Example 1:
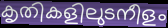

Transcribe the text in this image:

കൃതികളിലുടനീളം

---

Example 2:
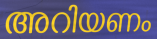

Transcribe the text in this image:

അറിയണം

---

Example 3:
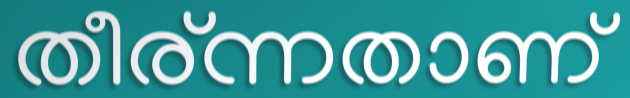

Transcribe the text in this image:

തീര്ന്നതാണ്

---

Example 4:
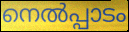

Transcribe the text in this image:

നെൽപ്പാടം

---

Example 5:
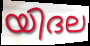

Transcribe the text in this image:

യിദല